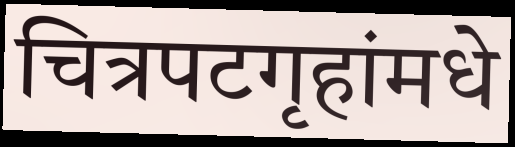
चित्रपटगृहांमधे